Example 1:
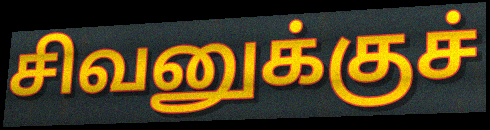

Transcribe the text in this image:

சிவனுக்குச்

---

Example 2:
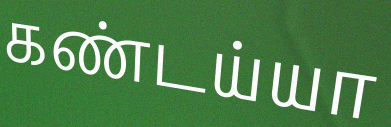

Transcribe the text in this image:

கண்டய்யா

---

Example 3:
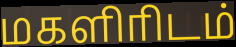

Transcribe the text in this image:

மகளிரிடம்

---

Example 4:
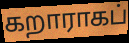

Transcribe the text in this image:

கறாராகப்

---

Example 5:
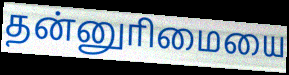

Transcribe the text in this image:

தன்னுரிமையை